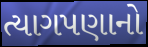
ત્યાગપણાનો